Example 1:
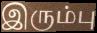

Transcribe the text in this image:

இரும்பு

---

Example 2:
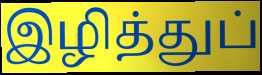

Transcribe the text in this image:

இழித்துப்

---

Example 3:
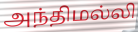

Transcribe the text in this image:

அந்திமல்லி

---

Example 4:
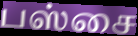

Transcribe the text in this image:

பஸ்சை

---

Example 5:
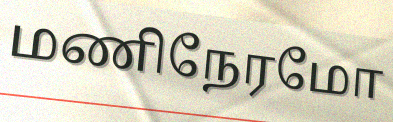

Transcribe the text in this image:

மணிநேரமோ